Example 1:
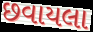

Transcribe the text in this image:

છવાયલા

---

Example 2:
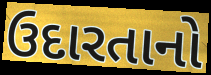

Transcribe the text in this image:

ઉદારતાનો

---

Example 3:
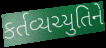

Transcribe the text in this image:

કર્તવ્યચ્યુતિને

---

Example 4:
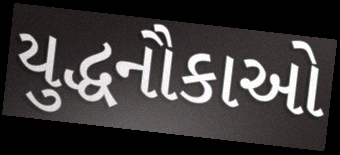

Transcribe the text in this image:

યુદ્ધનૌકાઓ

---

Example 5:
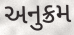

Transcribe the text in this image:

અનુક્રમ